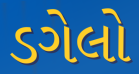
ડગેલો